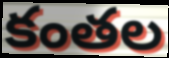
కంతల